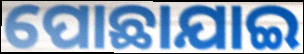
ପୋଛାଯାଇ